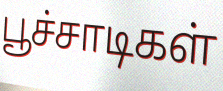
பூச்சாடிகள்